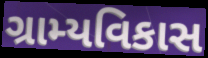
ગ્રામ્યવિકાસ